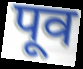
पूव